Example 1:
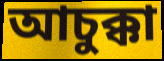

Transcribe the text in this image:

আচুক্কা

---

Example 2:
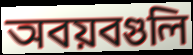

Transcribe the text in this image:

অবয়বগুলি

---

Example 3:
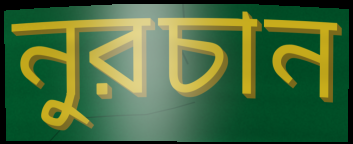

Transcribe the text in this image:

নুরচান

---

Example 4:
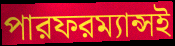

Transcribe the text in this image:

পারফরম্যান্সই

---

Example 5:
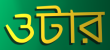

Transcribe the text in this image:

ওটার